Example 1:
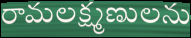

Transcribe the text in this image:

రామలక్ష్మణులను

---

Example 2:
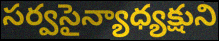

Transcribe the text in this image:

సర్వసైన్యాధ్యక్షుని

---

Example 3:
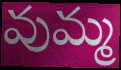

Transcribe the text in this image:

వుమ్మ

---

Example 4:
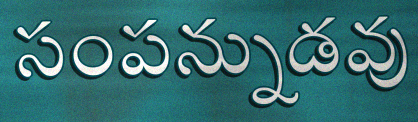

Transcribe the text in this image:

సంపన్నుడవు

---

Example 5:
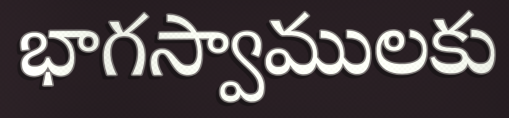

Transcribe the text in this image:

భాగస్వాములకు